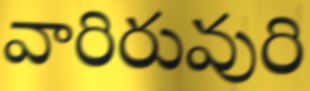
వారిరువురి